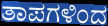
ತಾಪಗಳಿಂದ